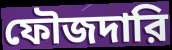
ফৌজদারি